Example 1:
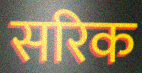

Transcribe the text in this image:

सरिक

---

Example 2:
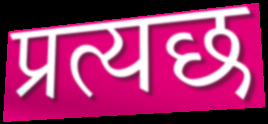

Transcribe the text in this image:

प्रत्यछ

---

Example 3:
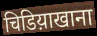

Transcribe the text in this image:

चिडिय़ाखाना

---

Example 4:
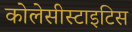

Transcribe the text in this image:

कोलेसीस्टाइटिस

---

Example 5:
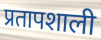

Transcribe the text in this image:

प्रतापशाली